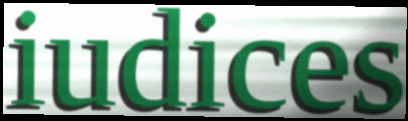
iudices